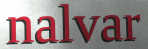
nalvar